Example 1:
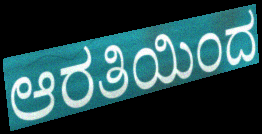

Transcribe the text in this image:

ಆರತಿಯಿಂದ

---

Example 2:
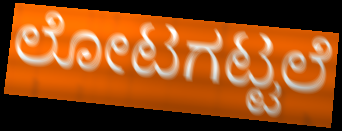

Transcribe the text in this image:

ಲೋಟಗಟ್ಟಲೆ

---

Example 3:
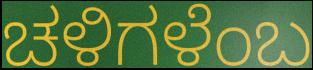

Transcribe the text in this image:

ಚಳಿಗಳೆಂಬ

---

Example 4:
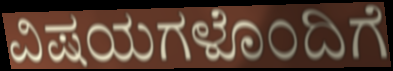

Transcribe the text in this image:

ವಿಷಯಗಳೊಂದಿಗೆ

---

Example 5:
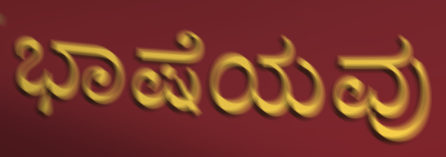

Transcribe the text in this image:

ಭಾಷೆಯವು